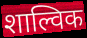
शाल्विक